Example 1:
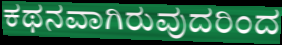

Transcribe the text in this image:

ಕಥನವಾಗಿರುವುದರಿಂದ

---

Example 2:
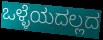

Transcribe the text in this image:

ಒಳ್ಳೆಯದಲ್ಲದ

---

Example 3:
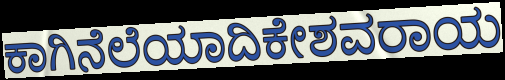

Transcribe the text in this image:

ಕಾಗಿನೆಲೆಯಾದಿಕೇಶವರಾಯ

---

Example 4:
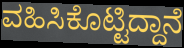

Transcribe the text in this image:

ವಹಿಸಿಕೊಟ್ಟಿದ್ದಾನೆ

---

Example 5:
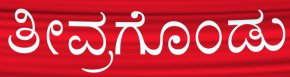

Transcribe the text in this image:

ತೀವ್ರಗೊಂಡು